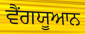
ਵੈਂਗਯੂਆਨ